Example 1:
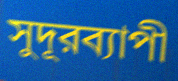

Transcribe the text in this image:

সুদূরব্যাপী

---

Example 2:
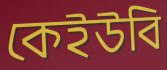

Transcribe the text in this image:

কেইউবি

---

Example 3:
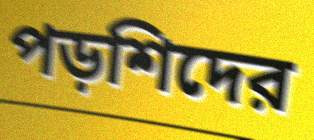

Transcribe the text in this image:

পড়শিদের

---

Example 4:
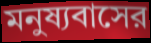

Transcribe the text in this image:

মনুষ্যবাসের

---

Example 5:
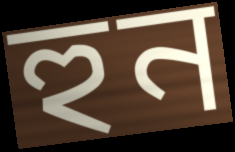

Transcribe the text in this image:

হুন